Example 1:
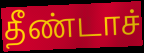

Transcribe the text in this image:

தீண்டாச்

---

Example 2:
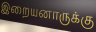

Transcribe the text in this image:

இறையனாருக்கு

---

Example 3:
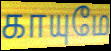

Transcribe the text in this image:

காயுமே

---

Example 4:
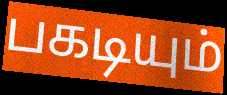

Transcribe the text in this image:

பகடியும்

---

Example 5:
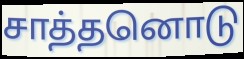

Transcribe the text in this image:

சாத்தனொடு